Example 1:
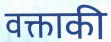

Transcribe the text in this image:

वक्ताकी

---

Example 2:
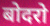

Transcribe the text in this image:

बोदरो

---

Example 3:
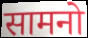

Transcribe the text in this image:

सामनो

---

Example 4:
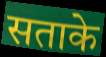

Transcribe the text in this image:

सताके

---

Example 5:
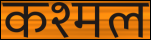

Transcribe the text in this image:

कश्मल